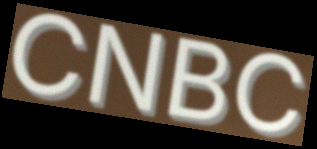
CNBC